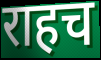
राहच